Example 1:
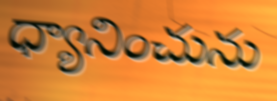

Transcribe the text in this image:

ధ్యానించును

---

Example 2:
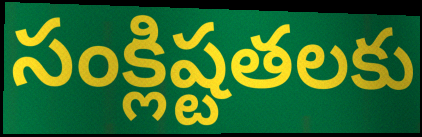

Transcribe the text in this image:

సంక్లిష్టతలకు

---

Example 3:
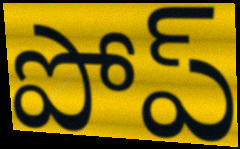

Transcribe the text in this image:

పోప్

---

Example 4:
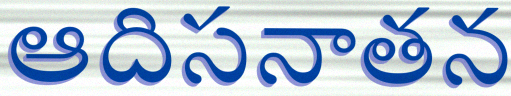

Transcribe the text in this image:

ఆదిసనాతన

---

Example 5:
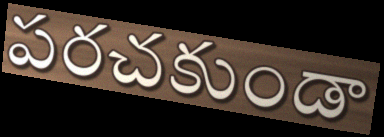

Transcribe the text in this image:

పరచకుండా